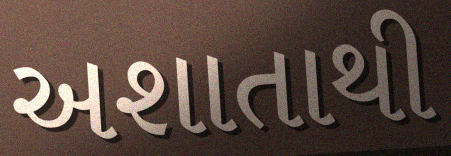
અશાતાથી